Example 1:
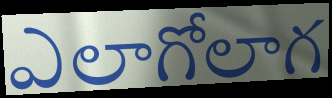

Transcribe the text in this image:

ఎలాగోలాగ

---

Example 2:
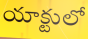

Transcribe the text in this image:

యాక్టులో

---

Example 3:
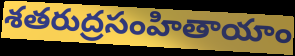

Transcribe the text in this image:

శతరుద్రసంహితాయాం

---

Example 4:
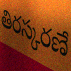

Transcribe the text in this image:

తిరస్కరణే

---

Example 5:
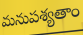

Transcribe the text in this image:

మనుపశ్యతాం